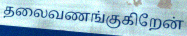
தலைவணங்குகிறேன்